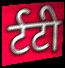
र्टटी